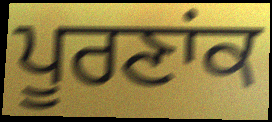
ਪੂਰਣਾਂਕ